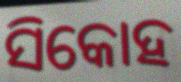
ସିକୋହ